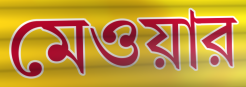
মেওয়ার